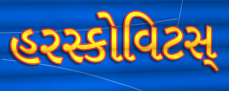
હરસ્કોવિટસ્